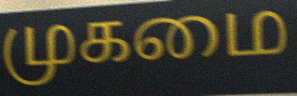
முகமை